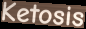
Ketosis